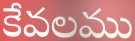
కేవలము